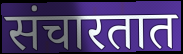
संचारतात